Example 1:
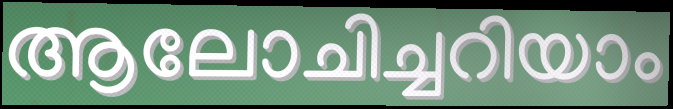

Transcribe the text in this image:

ആലോചിച്ചറിയാം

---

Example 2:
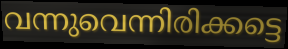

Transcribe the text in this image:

വന്നുവെന്നിരിക്കട്ടെ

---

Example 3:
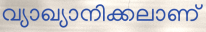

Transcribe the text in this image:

വ്യാഖ്യാനിക്കലാണ്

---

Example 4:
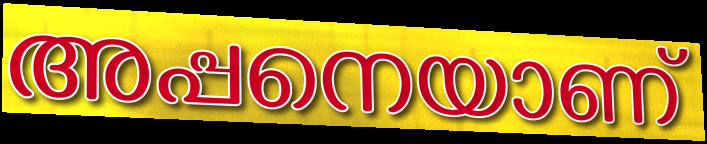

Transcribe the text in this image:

അപ്പനെയാണ്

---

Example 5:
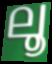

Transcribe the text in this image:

ലൂ